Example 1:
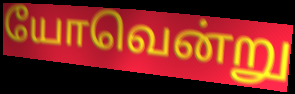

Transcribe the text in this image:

யோவென்று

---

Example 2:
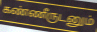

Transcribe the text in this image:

கண்ணீருடனும்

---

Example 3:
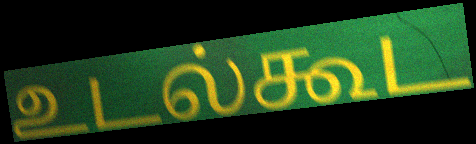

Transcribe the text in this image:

உடல்கூட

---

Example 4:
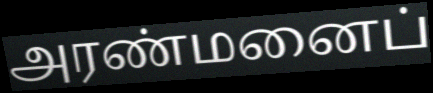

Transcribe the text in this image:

அரண்மனைப்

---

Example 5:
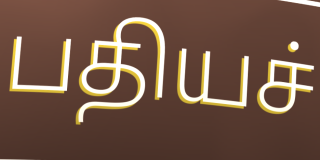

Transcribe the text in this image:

பதியச்